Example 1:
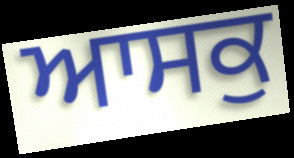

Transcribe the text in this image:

ਆਸਕੁ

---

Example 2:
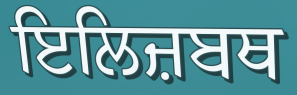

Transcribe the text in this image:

ਇਲਿਜ਼ਬਥ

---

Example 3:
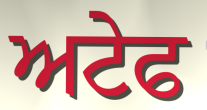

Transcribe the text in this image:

ਅਟੇਫ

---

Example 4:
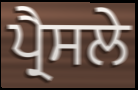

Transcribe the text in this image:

ਪ੍ਰੈਸਲੇ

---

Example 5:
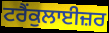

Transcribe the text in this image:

ਟਰੈਂਕੁਲਾਈਜ਼ਰ